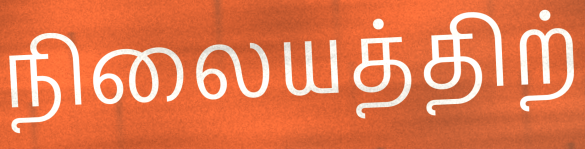
நிலையத்திற்